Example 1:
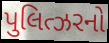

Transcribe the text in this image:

પુલિત્ઝરનો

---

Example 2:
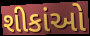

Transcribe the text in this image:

શીકાંઓ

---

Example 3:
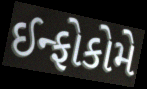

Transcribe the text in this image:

ઈન્ફોકોમે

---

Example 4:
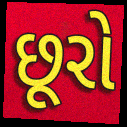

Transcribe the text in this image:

છૂરો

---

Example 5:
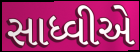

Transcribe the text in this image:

સાધ્વીએ